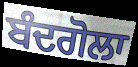
ਬੰਦਗੋਲਾ